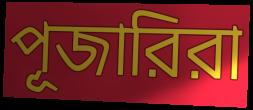
পূজারিরা